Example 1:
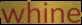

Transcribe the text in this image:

whine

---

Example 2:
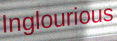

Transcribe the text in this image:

Inglourious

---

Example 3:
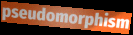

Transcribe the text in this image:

pseudomorphism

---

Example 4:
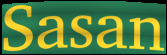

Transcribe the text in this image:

Sasan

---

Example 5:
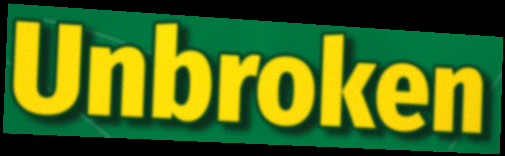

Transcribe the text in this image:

Unbroken